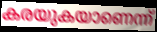
കരയുകയാണെന്ന്